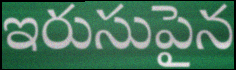
ఇరుసుపైన